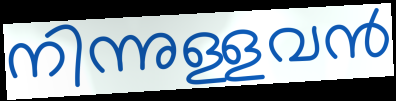
നിന്നുള്ളവൻ